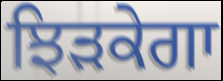
ਝਿੜਕੇਗਾ